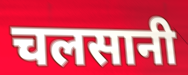
चलसानी